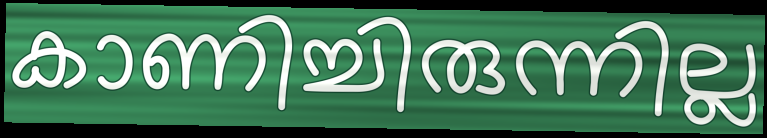
കാണിച്ചിരുന്നില്ല